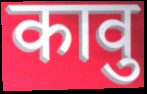
कावु